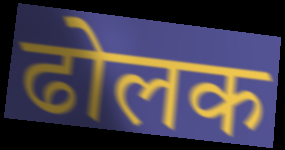
ढोलक